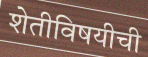
शेतीविषयीची